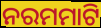
ନରମମାଟି